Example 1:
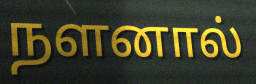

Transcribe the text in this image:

நளனால்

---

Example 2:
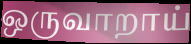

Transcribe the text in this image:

ஒருவாறாய்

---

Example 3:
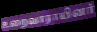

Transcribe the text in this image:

உறைவாராயினர்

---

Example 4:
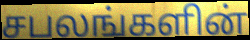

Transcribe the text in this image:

சபலங்களின்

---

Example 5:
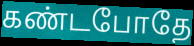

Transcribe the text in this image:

கண்டபோதே